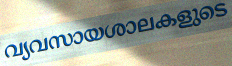
വ്യവസായശാലകളുടെ